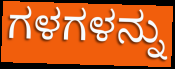
ಗಳಗಳನ್ನು